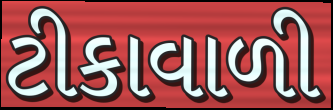
ટીકાવાળી